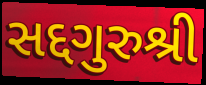
સદ્દગુરુશ્રી